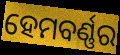
ହେମବର୍ଣ୍ଣର